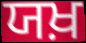
ਯਖ਼